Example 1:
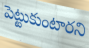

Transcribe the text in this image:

పెట్టుకుంటారని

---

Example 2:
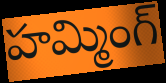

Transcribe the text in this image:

హమ్మింగ్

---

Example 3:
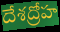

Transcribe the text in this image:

దేశద్రోహ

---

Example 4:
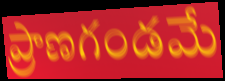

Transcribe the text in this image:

ప్రాణగండమే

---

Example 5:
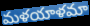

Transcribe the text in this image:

మళయాళమా